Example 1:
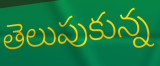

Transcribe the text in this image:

తెలుపుకున్న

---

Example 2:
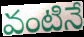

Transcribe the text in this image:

వంటినే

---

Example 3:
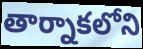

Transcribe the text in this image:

తార్నాకలోని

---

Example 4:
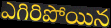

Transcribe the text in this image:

ఎగిరిపోయిన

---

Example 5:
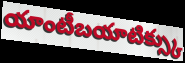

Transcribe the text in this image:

యాంటీబయాటిక్స్కు